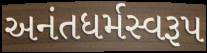
અનંતધર્મસ્વરૂપ